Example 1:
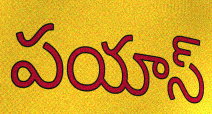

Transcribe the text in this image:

పయాస్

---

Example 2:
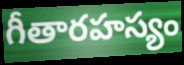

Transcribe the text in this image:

గీతారహస్యం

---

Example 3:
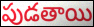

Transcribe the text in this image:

పుడతాయి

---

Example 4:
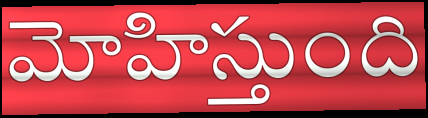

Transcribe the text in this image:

మోహిస్తుంది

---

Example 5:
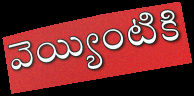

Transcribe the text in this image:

వెయ్యింటికి